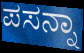
ಪಸನ್ನಾ